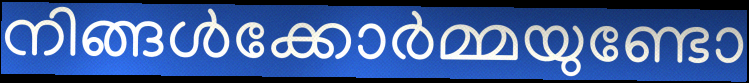
നിങ്ങൾക്കോർമ്മയുണ്ടോ